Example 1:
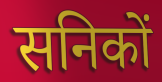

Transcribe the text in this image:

सनिकों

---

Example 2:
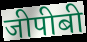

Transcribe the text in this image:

जीपीबी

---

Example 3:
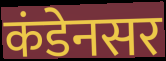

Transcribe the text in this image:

कंडेनसर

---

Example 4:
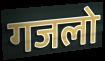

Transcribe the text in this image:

गजलो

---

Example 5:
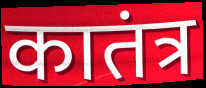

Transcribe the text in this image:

कातंत्र